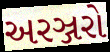
અરઞ્જરો